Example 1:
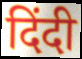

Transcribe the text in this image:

दिंदी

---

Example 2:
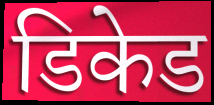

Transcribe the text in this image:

डिकेड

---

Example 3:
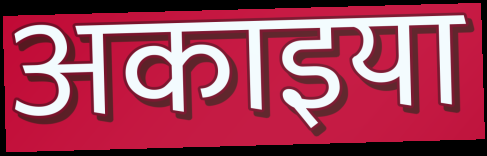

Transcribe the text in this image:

अकाइया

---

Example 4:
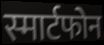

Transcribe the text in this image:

स्‍मार्टफोन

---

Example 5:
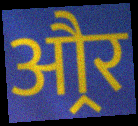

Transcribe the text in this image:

औ्रर